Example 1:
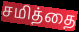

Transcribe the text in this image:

சமித்தை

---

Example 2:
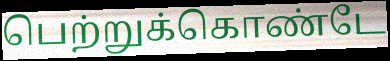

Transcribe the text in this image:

பெற்றுக்கொண்டே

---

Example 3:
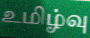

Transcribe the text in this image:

உமிழ்வு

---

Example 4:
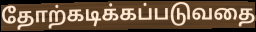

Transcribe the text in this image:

தோற்கடிக்கப்படுவதை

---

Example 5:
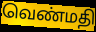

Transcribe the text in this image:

வெண்மதி